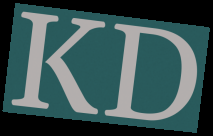
KD